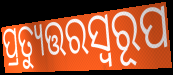
ପ୍ରତ୍ୟୁତ୍ତରସ୍ଵରୂପ